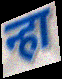
न्हा